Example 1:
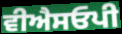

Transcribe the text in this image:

ਵੀਐਸਓਪੀ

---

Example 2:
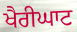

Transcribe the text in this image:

ਖੈਰੀਘਾਟ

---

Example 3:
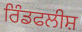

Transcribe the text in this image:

ਰਿੰਡਫਲੀਸ਼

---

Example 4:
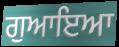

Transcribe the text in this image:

ਗੁਆਇਆ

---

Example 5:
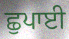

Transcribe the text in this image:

ਛੁਪਾਈ